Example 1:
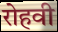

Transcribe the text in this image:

रोहवी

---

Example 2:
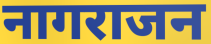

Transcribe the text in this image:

नागराजन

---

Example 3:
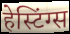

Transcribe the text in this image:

हेस्टिंग्स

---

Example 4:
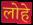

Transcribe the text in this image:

लोहे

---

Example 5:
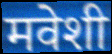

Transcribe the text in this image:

मवेशी